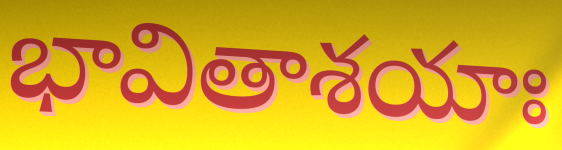
భావితాశయాః